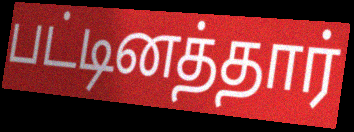
பட்டினத்தார்